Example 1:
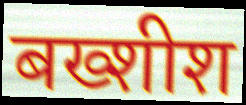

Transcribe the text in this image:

बख्शीश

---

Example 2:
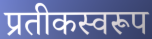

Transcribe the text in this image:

प्रतीकस्वरूप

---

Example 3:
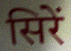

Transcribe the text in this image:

सिरें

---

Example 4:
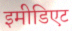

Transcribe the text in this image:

इमीडिएट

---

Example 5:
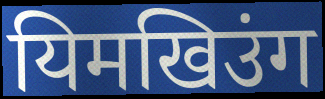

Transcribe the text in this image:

यिमखिउंग